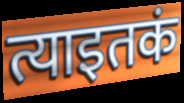
त्याइतकं